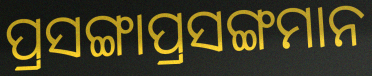
ପ୍ରସଙ୍ଗାପ୍ରସଙ୍ଗମାନ